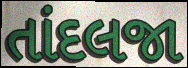
તાંદલજા